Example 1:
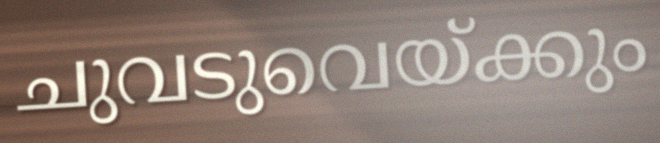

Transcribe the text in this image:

ചുവടുവെയ്ക്കും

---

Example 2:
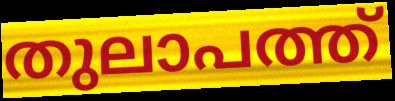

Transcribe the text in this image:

തുലാപത്ത്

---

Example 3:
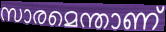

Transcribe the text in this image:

സാരമെന്താണ്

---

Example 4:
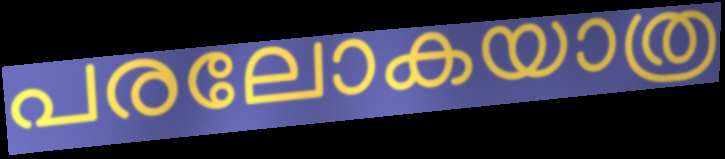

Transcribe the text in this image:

പരലോകയാത്ര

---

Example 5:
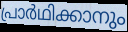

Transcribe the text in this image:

പ്രാർഥിക്കാനും